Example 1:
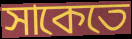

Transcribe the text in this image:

সাকেতে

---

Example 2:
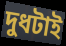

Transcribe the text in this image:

দুধটাই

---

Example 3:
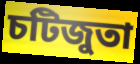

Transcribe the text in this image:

চটিজুতা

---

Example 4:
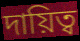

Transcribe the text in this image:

দায়িত্ব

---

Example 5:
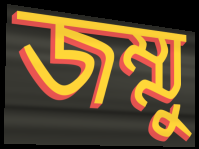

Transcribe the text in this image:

জম্মু